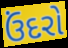
ઉંદરો